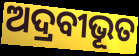
ଅଦ୍ରବୀଭୂତ